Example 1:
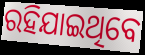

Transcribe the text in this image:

ରହିଯାଇଥିବେ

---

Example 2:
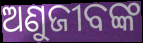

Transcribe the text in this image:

ଅଣୁଜୀବଙ୍କ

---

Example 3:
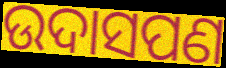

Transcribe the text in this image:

ଉଦାସପଣ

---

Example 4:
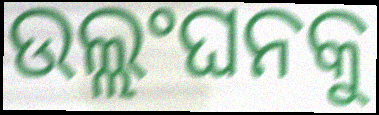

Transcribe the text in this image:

ଉଲ୍ଲଂଘନକୁ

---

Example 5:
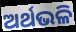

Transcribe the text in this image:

ଅର୍ଥଭଳି